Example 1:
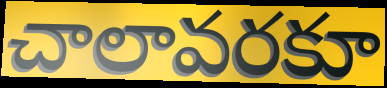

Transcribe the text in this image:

చాలావరకూ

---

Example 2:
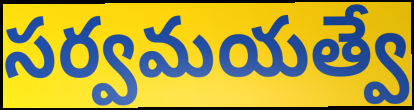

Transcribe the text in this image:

సర్వమయత్వే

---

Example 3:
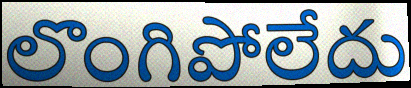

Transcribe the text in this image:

లొంగిపోలేదు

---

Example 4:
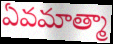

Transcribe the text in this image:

ఏవమాత్మా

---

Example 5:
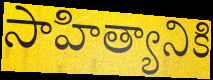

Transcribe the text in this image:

సాహిత్యానికి